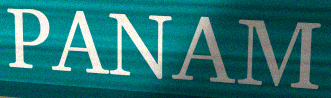
PANAM